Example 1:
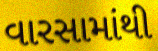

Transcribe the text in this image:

વારસામાંથી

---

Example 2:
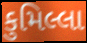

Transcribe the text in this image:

કુમિલ્લા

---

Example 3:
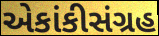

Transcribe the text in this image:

એકાંકીસંગ્રહ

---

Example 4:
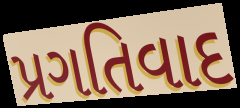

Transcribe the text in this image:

પ્રગતિવાદ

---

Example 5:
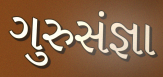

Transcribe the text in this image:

ગુરુસંજ્ઞા